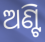
ଅଣ୍ଟି